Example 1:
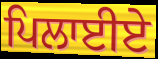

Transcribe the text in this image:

ਪਿਲਾਈਏ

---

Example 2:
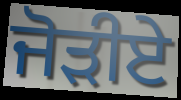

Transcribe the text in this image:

ਜੋੜੀਏ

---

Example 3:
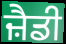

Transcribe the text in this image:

ਜ਼ੈਡੀ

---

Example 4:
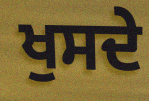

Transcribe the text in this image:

ਖੁਸਦੇ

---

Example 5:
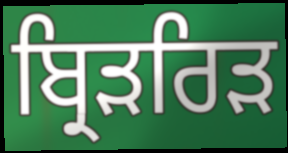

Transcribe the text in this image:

ਬ੍ਰਿੜਰਿੜ